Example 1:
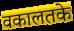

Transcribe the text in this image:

वकालतके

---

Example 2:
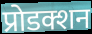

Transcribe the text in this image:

प्रोडक्‍शन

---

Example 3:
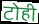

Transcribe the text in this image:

टोही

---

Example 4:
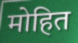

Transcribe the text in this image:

मोहित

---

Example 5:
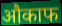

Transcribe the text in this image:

औकाफ